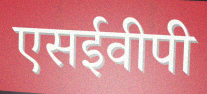
एसईवीपी